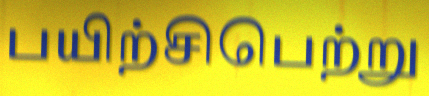
பயிற்சிபெற்று